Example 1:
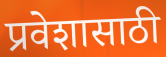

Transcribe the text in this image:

प्रवेशासाठी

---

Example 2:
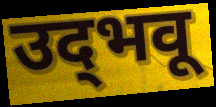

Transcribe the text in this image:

उद्‌भवू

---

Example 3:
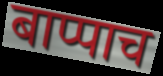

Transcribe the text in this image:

बाप्पाच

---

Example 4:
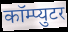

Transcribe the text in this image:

कॉम्प्युटर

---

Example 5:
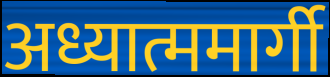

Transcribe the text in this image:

अध्यात्ममार्गी